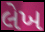
લેખ